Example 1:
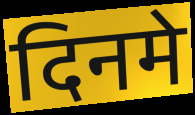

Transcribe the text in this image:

दिनमे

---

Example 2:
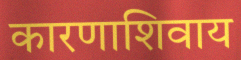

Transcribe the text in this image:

कारणाशिवाय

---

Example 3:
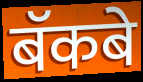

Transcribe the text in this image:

बॅकबे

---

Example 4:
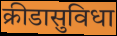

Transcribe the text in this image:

क्रीडासुविधा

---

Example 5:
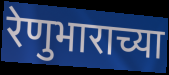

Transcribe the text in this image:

रेणुभाराच्या